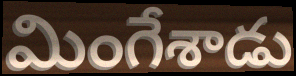
మింగేశాడు